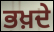
ਭਖ਼ਦੇ